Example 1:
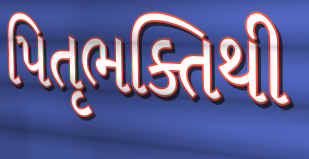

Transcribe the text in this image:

પિતૃભક્તિથી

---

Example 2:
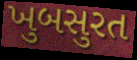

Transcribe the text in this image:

ખુબસુરત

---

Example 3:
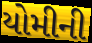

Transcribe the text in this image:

યોમીની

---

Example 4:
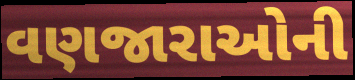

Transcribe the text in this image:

વણજારાઓની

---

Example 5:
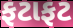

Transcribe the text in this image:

ફટાફટ